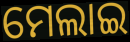
ମେଲାଇ